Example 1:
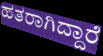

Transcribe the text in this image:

ಹತರಾಗಿದ್ದಾರೆ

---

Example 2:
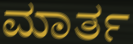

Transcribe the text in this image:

ಮಾರ್ತ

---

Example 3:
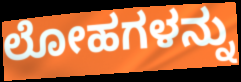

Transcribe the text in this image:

ಲೋಹಗಳನ್ನು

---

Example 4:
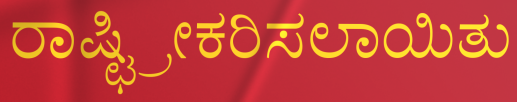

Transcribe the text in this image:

ರಾಷ್ಟ್ರೀಕರಿಸಲಾಯಿತು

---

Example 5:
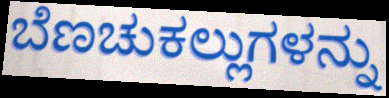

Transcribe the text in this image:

ಬೆಣಚುಕಲ್ಲುಗಳನ್ನು